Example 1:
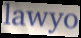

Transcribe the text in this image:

lawyo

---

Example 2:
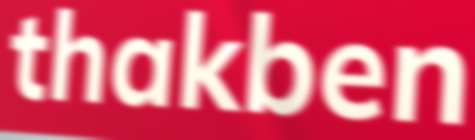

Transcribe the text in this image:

thakben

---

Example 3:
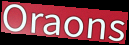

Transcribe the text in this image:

Oraons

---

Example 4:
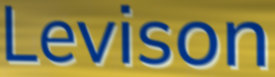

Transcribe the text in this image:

Levison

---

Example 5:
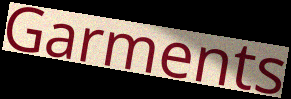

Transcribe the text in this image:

Garments